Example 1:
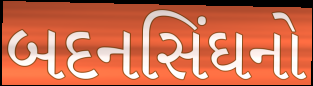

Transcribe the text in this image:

બદનસિંઘનો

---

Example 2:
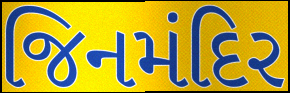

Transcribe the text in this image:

જિનમંદિર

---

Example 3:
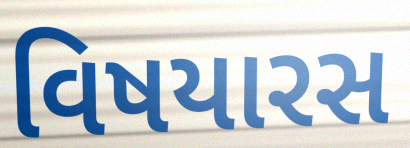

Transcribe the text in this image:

વિષયારસ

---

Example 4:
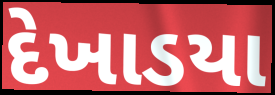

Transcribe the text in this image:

દેખાડયા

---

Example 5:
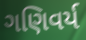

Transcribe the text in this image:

ગણિવર્ય